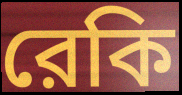
রেকি